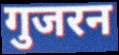
गुजरन